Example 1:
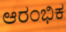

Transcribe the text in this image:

ಆರಂಭಿಕ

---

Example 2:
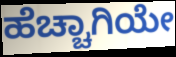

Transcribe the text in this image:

ಹೆಚ್ಚಾಗಿಯೇ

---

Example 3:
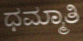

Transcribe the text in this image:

ಧಮ್ಮಾತಿ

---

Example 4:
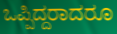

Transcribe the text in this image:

ಒಪ್ಪಿದ್ದರಾದರೂ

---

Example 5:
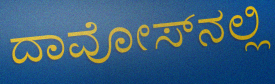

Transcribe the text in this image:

ದಾವೋಸ್‌ನಲ್ಲಿ